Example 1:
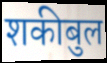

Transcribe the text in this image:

शकीबुल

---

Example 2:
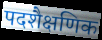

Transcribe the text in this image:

पदशैक्षणिक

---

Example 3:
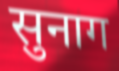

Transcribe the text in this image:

सुनाग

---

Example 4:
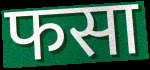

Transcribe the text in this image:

फसा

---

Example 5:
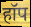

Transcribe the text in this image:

हॉप